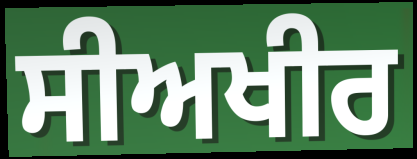
ਸੀਅਖੀਰ